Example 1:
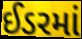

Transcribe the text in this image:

ઈડરમાં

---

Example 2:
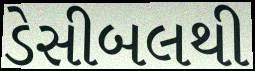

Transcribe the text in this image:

ડેસીબલથી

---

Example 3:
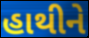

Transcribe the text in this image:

હાથીને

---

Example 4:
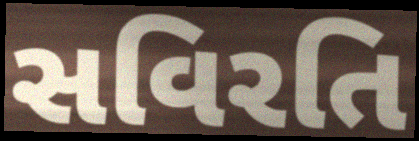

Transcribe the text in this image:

સવિરતિ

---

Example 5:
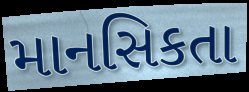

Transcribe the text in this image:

માનસિકતા